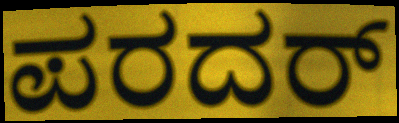
ಪರದರ್